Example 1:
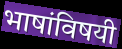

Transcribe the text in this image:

भाषांविषयी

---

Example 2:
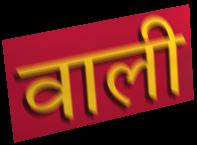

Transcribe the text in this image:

वाली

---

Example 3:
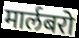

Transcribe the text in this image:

मार्लबरो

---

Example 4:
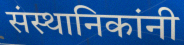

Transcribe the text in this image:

संस्थानिकांनी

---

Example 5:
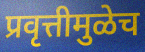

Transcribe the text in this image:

प्रवृत्तीमुळेच